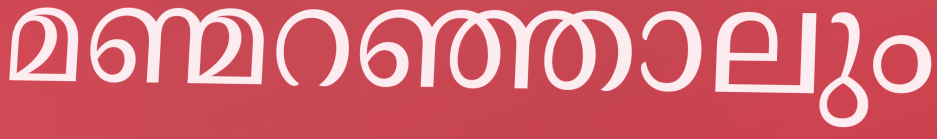
മണ്മറഞ്ഞാലും